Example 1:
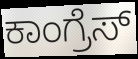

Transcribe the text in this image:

ಕಾಂಗ್ರೆಸ್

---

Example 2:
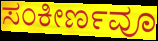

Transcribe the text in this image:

ಸಂಕೀರ್ಣವೂ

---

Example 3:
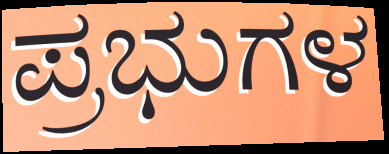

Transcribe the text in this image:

ಪ್ರಭುಗಳ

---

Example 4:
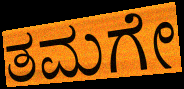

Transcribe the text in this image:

ತಮಗೇ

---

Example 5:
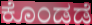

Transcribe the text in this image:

ಕೊಂಡಡೆ